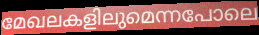
മേഖലകളിലുമെന്നപോലെ